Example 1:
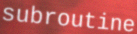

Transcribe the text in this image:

subroutine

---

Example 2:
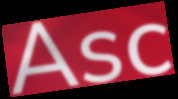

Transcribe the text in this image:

Asc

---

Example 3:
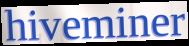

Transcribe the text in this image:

hiveminer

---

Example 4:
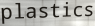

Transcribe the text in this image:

plastics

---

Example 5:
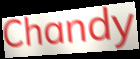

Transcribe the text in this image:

Chandy